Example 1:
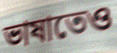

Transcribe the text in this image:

ভাষাতেও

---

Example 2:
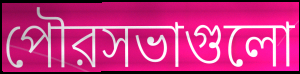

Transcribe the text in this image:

পৌরসভাগুলো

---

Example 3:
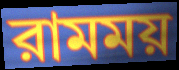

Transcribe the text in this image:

রামময়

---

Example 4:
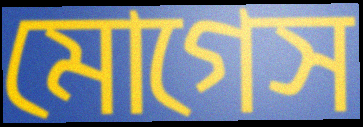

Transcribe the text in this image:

মোগেস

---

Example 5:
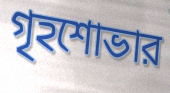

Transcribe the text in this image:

গৃহশোভার